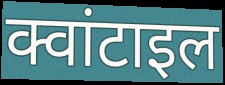
क्वांटाइल